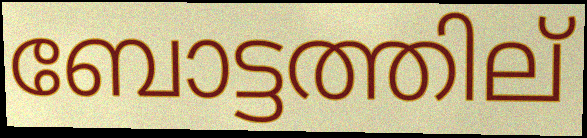
ബോട്ടത്തില്